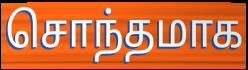
சொந்தமாக